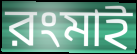
রংমাই